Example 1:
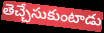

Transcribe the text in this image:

తెచ్చేసుకుంటాడు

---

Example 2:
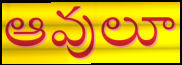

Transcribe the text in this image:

ఆవులూ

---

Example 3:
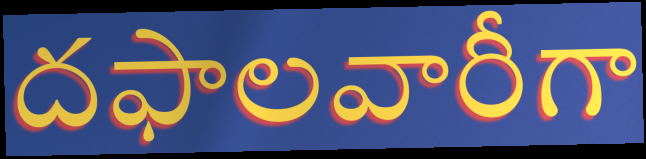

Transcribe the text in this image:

దఫాలవారీగా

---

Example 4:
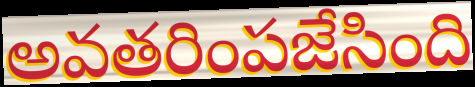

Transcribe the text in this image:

అవతరింపజేసింది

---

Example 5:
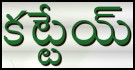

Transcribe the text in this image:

కట్టేయ్